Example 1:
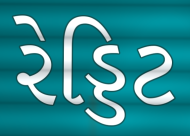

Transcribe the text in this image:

રેડ્ડિટ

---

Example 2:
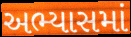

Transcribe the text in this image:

અભ્યાસમાં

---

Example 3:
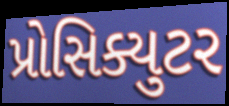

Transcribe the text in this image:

પ્રોસિક્યુટર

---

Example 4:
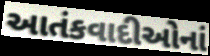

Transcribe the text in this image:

આતંકવાદીઓનાં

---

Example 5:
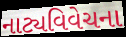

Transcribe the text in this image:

નાટ્યવિવેચના